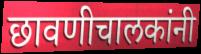
छावणीचालकांनी